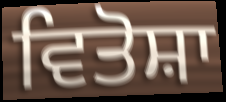
ਵਿਤੋਸ਼ਾ